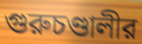
গুরুচণ্ডালীর